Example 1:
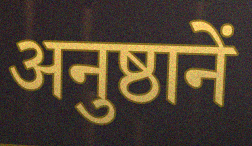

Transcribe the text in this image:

अनुष्ठानें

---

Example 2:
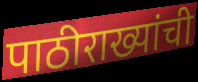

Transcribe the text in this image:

पाठीराख्यांची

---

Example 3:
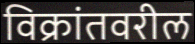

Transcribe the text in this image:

विक्रांतवरील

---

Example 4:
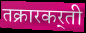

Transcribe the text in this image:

तक्रारकर्ती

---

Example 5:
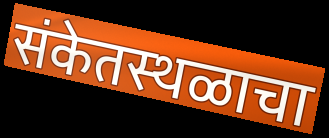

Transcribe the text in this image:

संकेतस्थळाचा